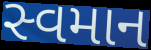
સ્વમાન